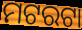
ମଟରଟା